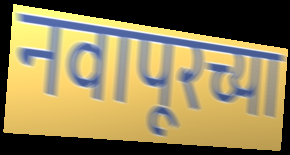
नवापूरच्या